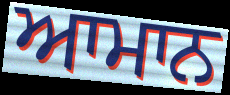
ਆਮਾਨ